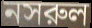
নসরুল